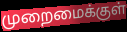
முறைமைக்குள்